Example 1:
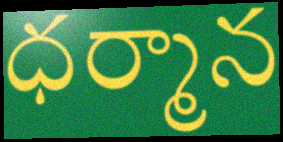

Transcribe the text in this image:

ధర్మాన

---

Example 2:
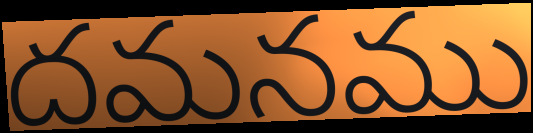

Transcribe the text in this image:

దమనము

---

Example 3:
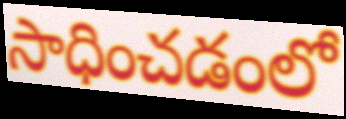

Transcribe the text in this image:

సాధించడంలో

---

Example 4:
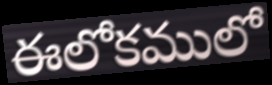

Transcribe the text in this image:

ఈలోకములో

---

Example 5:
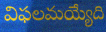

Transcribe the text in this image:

విఫలమయ్యేది